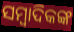
ସମ୍ୱାଦିକଙ୍କ